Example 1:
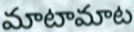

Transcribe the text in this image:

మాటామాట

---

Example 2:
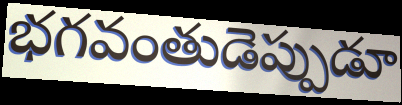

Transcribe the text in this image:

భగవంతుడెప్పుడూ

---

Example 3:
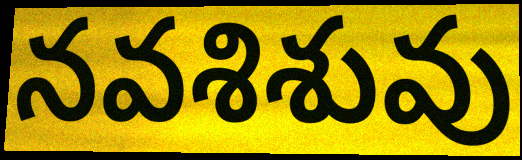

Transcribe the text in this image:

నవశిశువు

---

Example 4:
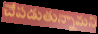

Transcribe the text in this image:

చేపడుతున్నామని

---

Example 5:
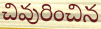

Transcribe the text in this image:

చివురించిన